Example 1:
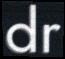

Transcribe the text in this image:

dr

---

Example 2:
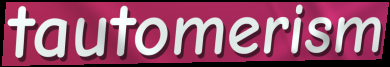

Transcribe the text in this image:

tautomerism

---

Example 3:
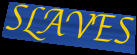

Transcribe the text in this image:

SLAVES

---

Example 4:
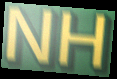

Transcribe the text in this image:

NH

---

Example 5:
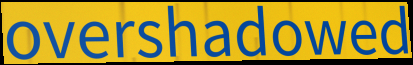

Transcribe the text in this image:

overshadowed